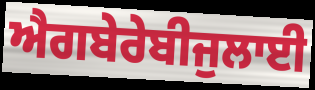
ਐਗਬੇਰੇਬੀਜੁਲਾਈ